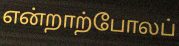
என்றாற்போலப்